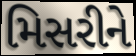
મિસરીને